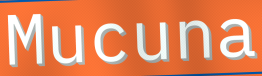
Mucuna